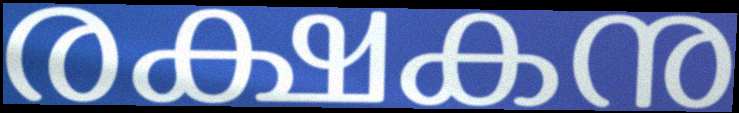
രക്ഷകനു